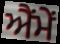
ਐਂਮੇਂ